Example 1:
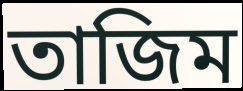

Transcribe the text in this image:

তাজিম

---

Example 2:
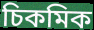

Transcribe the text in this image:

চিকমিক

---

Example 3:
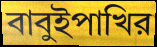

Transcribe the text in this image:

বাবুইপাখির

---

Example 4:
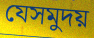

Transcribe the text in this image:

যেসমুদয়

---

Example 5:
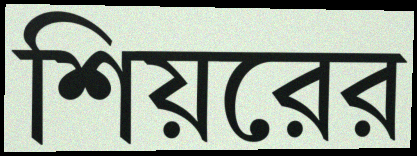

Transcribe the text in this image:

শিয়রের